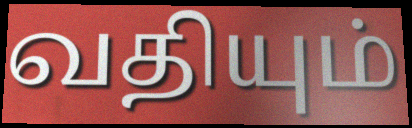
வதியும்